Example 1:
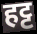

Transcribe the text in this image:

हट्ट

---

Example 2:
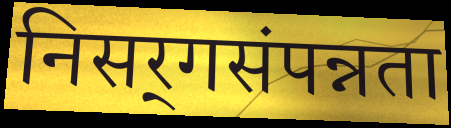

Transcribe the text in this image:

निसर्गसंपन्नता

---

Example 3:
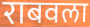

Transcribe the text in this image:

राबवला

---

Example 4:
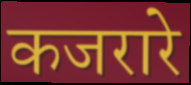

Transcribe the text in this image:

कजरारे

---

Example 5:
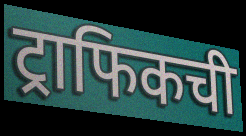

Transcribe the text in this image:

ट्राफिकची